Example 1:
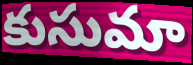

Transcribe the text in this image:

కుసుమా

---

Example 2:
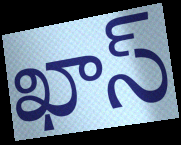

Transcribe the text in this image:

ఖాస్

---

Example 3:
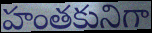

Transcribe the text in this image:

హంతకునిగా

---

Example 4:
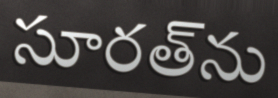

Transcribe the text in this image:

సూరత్‌ను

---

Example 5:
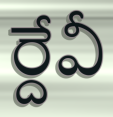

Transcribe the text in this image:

ర్దేవీ